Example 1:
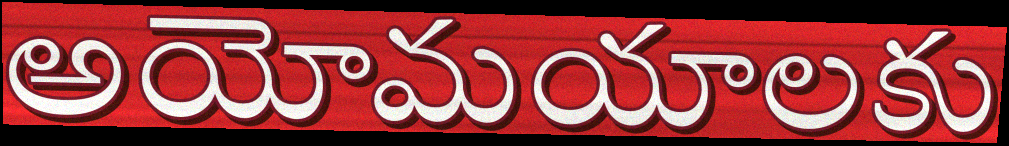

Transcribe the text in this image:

అయోమయాలకు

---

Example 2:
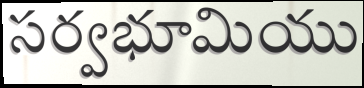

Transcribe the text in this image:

సర్వభూమియు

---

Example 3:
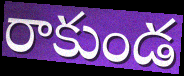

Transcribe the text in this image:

రాకుండ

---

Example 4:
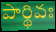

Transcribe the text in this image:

పార్థివః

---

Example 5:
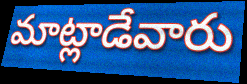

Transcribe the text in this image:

మాట్లాడేవారు